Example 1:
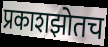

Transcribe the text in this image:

प्रकाशझोतच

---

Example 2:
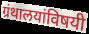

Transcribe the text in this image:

ग्रंथालयांविषयी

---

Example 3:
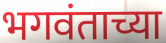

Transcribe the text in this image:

भगवंताच्या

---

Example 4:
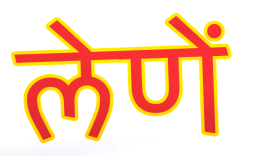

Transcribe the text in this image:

लेणें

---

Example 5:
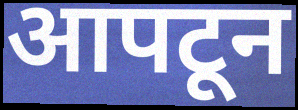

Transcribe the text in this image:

आपटून